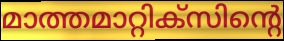
മാത്തമാറ്റിക്സിന്റെ